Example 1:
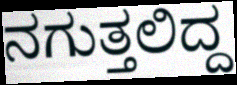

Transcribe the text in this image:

ನಗುತ್ತಲಿದ್ದ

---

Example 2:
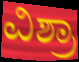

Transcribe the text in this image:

ವಿಶ್ರಾ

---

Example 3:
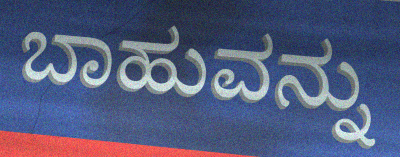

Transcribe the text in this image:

ಬಾಹುವನ್ನು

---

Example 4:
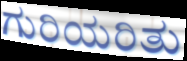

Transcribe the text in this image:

ಗುರಿಯರಿತು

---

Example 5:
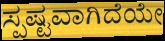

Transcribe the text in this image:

ಸ್ಪಷ್ಟವಾಗಿದೆಯೇ